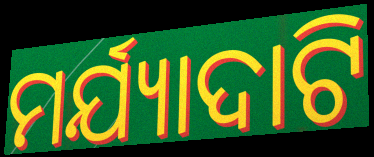
ମର୍ଯ୍ୟାଦାଟି